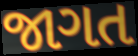
જાગત